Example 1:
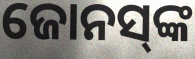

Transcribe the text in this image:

ଜୋନସ୍‌ଙ୍କ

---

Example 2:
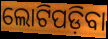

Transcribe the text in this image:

ଲୋଟିପଡ଼ିବା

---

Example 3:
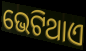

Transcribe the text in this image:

ଭେଟିଥାଏ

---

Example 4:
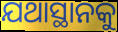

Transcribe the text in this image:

ଯଥାସ୍ଥାନକୁ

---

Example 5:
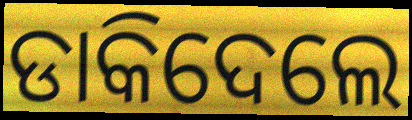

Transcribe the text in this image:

ଡାକିଦେଲେ